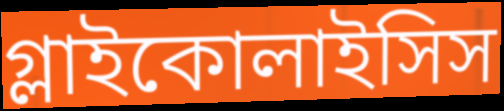
গ্লাইকোলাইসিস